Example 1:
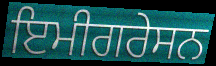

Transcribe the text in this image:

ਇਮੀਗਰੇਸਨ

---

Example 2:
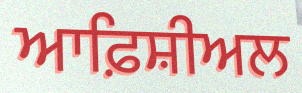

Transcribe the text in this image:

ਆਫ਼ਿਸ਼ੀਅਲ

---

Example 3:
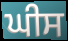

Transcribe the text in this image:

ਘੀਸ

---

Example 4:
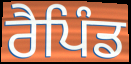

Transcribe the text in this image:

ਰੈਪਿੰਡ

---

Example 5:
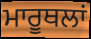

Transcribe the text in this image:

ਮਾਰੂਥਲਾਂ